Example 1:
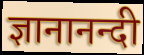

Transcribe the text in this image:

ज्ञानानन्दी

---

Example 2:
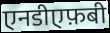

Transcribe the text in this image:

एनडीएफ़बी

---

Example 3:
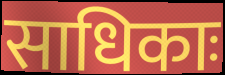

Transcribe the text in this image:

साधिकाः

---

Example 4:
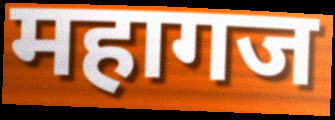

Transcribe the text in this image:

महागज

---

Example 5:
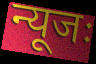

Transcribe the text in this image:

न्यूजः